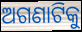
ଅଗଣାଟିକୁ